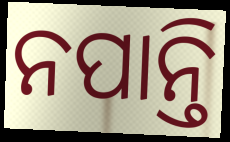
ନପାନ୍ତି